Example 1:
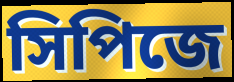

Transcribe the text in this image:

সিপিজে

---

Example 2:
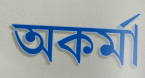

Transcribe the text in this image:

অকর্মা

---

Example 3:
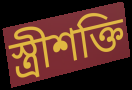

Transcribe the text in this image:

স্ত্রীশক্তি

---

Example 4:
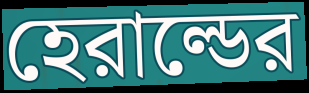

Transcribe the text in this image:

হেরাল্ডের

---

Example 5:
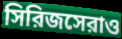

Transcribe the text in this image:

সিরিজসেরাও